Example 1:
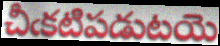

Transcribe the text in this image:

చీఁకటిపడుటయె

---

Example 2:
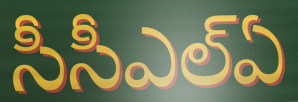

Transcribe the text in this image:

సీసీఎల్ఏ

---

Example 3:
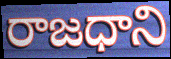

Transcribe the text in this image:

రాజధాని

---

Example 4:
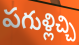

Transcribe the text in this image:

పగుళ్లిచ్చి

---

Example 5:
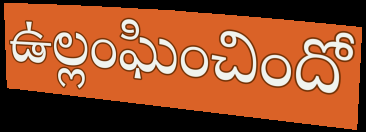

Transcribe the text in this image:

ఉల్లంఘించిందో